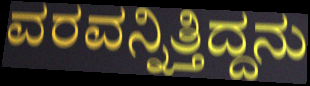
ವರವನ್ನಿತ್ತಿದ್ದನು